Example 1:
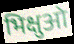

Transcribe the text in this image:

भिक्षुओ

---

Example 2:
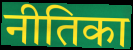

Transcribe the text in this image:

नीतिका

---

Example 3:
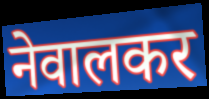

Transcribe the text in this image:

नेवालकर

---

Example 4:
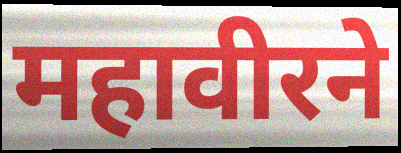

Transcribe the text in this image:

महावीरने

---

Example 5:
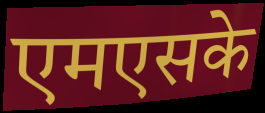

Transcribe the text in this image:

एमएसके